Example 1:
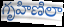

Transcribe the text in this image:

గృహిణిలా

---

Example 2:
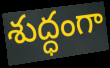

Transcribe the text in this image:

శుద్ధంగా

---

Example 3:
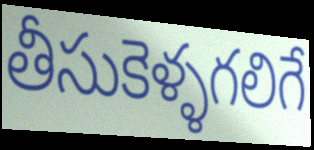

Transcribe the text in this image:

తీసుకెళ్ళగలిగే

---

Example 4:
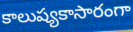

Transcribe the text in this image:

కాలుష్యకాసారంగా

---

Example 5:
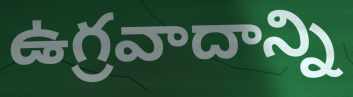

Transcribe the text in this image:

ఉగ్రవాదాన్ని